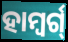
ହାମ୍ବର୍ଗ୍